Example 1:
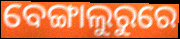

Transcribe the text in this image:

ବେଙ୍ଗାଲୁରୁରେ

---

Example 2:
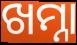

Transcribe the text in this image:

ଖମ୍ନା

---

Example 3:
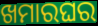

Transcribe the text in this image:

ଖମାରଘର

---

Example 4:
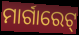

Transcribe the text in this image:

ମାର୍ଗାରେଟ୍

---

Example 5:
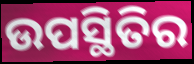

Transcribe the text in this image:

ଉପସ୍ଥିତିର